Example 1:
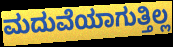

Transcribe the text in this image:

ಮದುವೆಯಾಗುತ್ತಿಲ್ಲ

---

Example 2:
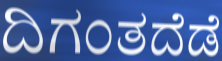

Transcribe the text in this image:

ದಿಗಂತದೆಡೆ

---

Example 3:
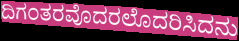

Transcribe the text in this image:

ದಿಗಂತರವೊದರಲೊದರಿಸಿದನು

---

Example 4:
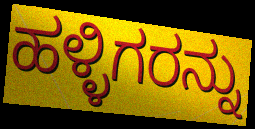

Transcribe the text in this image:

ಹಳ್ಳಿಗರನ್ನು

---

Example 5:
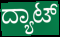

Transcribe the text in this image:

ದ್ಯಾಟ್